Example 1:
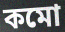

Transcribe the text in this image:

কমো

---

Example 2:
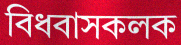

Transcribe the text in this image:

বিধবাসকলক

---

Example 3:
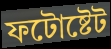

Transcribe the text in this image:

ফটোষ্টেট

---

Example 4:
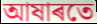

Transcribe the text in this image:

আষাৰতে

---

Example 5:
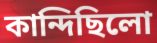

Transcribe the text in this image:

কান্দিছিলো